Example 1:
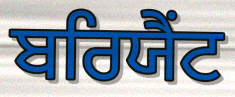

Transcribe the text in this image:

ਬਰਿਯੈਂਟ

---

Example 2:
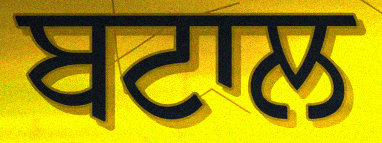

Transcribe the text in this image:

ਬਟਾਲ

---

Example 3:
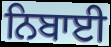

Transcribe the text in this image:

ਨਿਬਾਈ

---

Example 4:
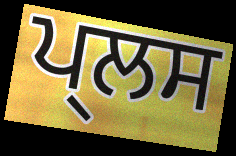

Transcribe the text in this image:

ਪ੍ਲਸ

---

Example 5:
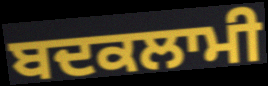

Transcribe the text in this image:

ਬਦਕਲਾਮੀ